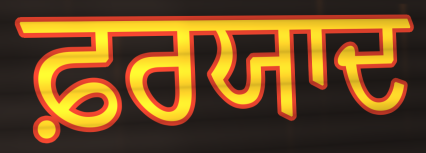
ਫ਼ਰਯਾਦ